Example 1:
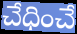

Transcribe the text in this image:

చేధించే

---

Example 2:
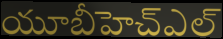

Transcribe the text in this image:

యూబీహెచ్ఎల్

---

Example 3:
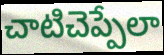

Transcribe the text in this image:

చాటిచెప్పేలా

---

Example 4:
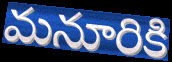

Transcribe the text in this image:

మనూరికి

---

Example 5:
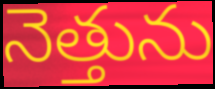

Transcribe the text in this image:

నెత్తును